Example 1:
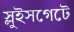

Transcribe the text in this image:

স্লুইসগেটে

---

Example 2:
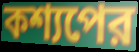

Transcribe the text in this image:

কশ্যপের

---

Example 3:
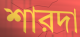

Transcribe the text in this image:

শারদা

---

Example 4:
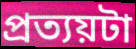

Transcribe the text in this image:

প্রত্যয়টা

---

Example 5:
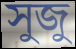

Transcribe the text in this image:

সুজু